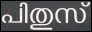
പിതുസ്